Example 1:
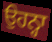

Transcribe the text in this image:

ਉਹਨ੍ਹਾ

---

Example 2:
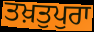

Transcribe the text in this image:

ਤਖ਼ਤੁਪੁਰਾ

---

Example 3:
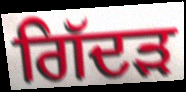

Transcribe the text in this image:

ਗਿੱਦਡ਼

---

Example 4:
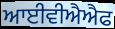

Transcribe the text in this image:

ਆਈਵੀਐਐਫ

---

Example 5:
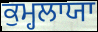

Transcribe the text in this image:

ਕੁਮ੍ਹਲਾਯਾ